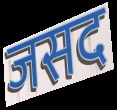
जसद